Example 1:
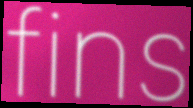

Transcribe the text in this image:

fins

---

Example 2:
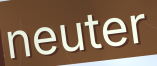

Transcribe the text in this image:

neuter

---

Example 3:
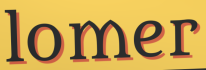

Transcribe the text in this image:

lomer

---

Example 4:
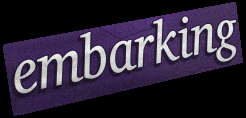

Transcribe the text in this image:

embarking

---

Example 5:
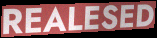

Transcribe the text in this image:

REALESED